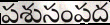
పశుసంపద